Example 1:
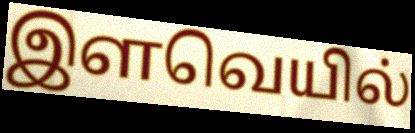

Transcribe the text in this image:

இளவெயில்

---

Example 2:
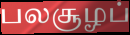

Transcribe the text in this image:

பலசூழப்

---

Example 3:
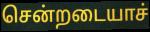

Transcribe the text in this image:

சென்றடையாச்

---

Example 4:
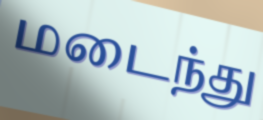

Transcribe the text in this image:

மடைந்து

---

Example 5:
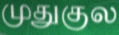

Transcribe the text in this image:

முதுகுல